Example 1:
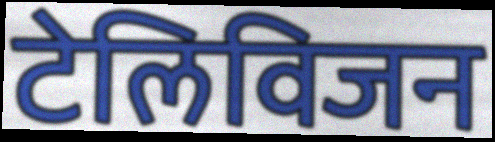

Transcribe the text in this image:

टेलिविजन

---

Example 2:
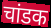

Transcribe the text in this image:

चांडक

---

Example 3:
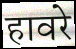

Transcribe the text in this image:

हावरे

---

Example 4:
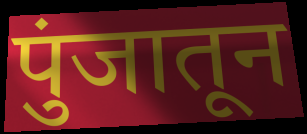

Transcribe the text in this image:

पुंजातून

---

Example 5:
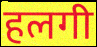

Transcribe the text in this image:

हलगी